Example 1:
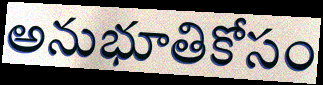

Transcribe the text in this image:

అనుభూతికోసం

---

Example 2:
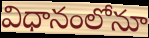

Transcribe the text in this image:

విధానంలోనూ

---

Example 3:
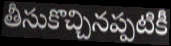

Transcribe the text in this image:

తీసుకొచ్చినప్పటికీ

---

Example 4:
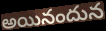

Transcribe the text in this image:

అయినందున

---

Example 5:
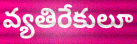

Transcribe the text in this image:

వ్యతిరేకులూ